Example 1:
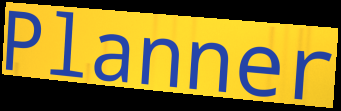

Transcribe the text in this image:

Planner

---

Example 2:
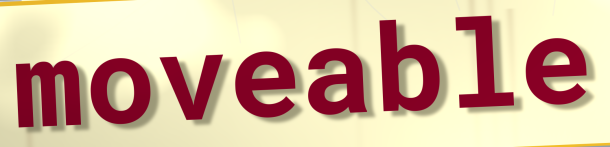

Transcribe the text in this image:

moveable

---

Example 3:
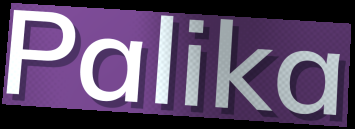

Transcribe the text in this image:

Palika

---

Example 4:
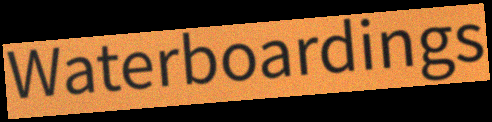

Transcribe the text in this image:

Waterboardings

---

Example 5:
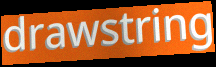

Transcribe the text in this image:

drawstring